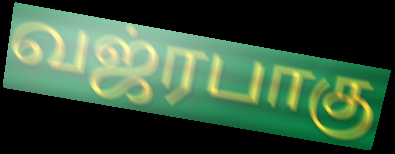
வஜ்ரபாகு